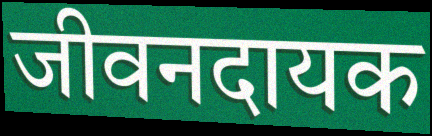
जीवनदायक